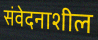
संवेदनाशील